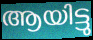
ആയിട്ടു